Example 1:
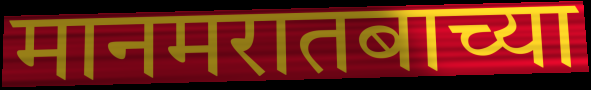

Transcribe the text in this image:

मानमरातबाच्या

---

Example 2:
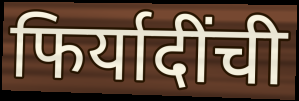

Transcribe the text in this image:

फिर्यादींची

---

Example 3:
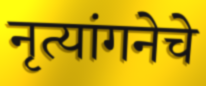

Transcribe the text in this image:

नृत्यांगनेचे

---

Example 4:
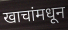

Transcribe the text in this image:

खाचांमधून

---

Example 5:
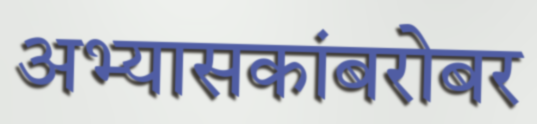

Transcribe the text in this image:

अभ्यासकांबरोबर